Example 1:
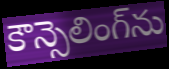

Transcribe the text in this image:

కౌన్సెలింగ్‌ను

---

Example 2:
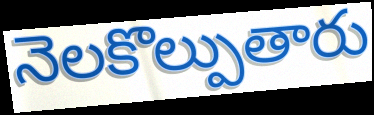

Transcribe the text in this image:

నెలకొల్పుతారు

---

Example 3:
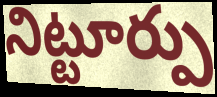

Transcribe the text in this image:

నిట్టూర్పు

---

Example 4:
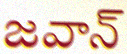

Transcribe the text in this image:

జవాన్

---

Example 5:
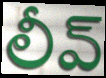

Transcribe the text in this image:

లీవ్